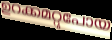
ഉറക്കമറ്റുപോയ